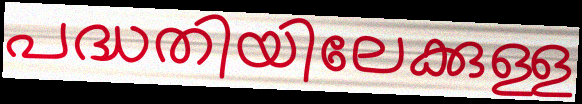
പദ്ധതിയിലേക്കുള്ള